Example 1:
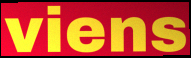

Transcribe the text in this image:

viens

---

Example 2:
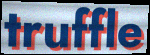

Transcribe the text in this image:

truffle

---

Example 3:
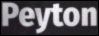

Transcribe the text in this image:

Peyton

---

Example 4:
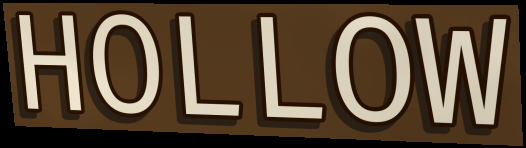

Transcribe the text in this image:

HOLLOW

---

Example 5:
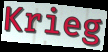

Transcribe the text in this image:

Krieg